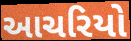
આચરિયો